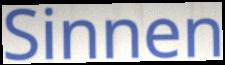
Sinnen